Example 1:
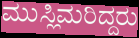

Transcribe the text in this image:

ಮುಸ್ಲಿಮರಿದ್ದರು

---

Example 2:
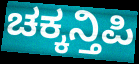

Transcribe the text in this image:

ಚಕ್ಕನ್ತಿಪಿ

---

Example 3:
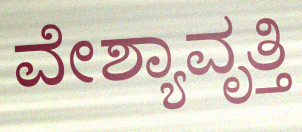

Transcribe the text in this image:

ವೇಶ್ಯಾವೃತ್ತಿ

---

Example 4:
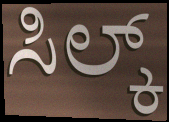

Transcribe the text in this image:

ಸಿಲ್ಕ್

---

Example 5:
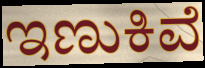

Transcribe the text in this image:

ಇಣುಕಿವೆ